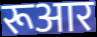
रूआर